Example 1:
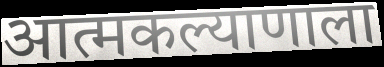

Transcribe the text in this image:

आत्मकल्याणाला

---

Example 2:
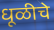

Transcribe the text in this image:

धूळीचे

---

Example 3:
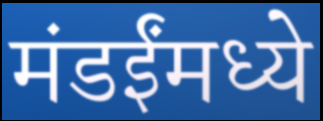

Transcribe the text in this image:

मंडईंमध्ये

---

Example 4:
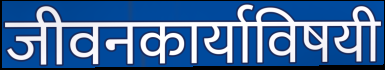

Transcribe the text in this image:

जीवनकार्याविषयी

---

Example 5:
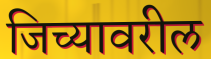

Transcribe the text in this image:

जिच्यावरील